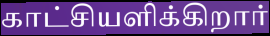
காட்சியளிக்கிறார்